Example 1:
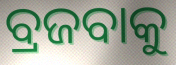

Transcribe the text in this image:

ବ୍ରଜବାକୁ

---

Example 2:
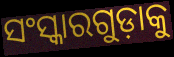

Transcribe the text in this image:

ସଂସ୍କାରଗୁଡ଼ାକୁ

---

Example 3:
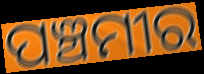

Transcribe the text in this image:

ପଞ୍ଚମୀର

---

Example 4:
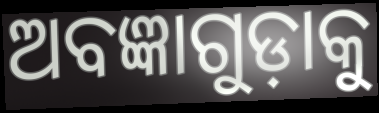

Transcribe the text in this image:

ଅବଜ୍ଞାଗୁଡ଼ାକୁ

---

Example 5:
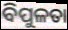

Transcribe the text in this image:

ବିପୁଳତା